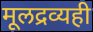
मूलद्रव्यही